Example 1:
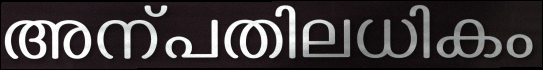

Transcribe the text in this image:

അന്പതിലധികം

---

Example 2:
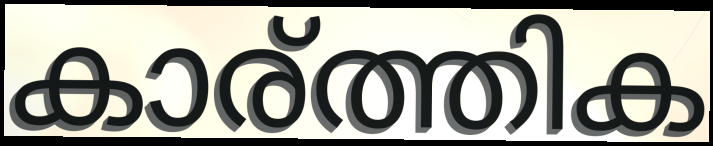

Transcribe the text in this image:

കാര്ത്തിക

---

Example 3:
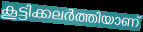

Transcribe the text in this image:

കൂട്ടിക്കലർത്തിയാണ്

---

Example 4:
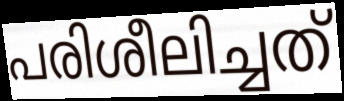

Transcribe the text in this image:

പരിശീലിച്ചത്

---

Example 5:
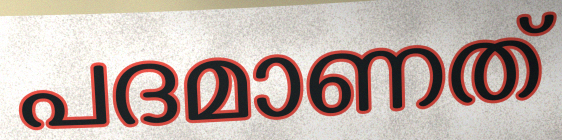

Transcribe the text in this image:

പദമാണത്